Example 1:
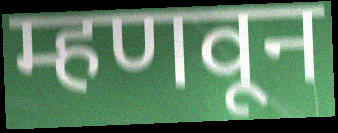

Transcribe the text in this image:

म्हणवून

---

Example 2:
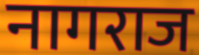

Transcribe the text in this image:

नागराज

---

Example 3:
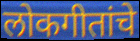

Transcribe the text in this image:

लोकगीतांचे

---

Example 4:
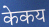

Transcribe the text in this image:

केकय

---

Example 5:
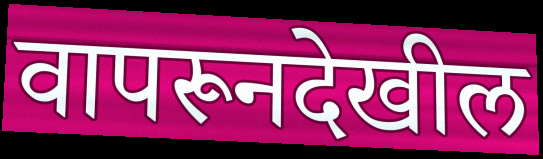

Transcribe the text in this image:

वापरूनदेखील